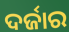
ଦର୍ଜାର